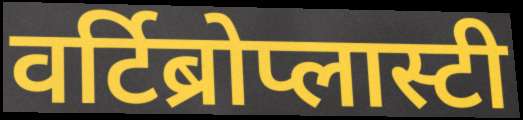
वर्टिब्रोप्लास्टी